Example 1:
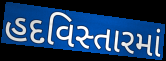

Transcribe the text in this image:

હદવિસ્તારમાં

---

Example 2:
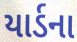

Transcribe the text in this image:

યાર્ડના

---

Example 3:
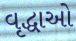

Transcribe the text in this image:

વૃદ્ધાઓ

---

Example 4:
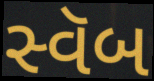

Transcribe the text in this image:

સ્વૅબ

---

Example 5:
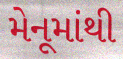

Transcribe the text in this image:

મેનૂમાંથી